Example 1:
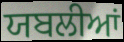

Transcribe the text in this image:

ਯਬਲੀਆਂ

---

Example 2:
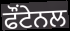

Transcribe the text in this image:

ਫੌਂਟੇਨਲ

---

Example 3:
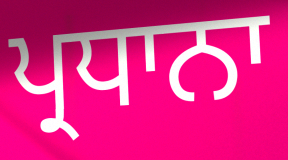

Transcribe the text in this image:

ਪ੍ਰਧਾਨਾ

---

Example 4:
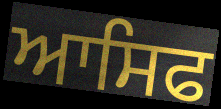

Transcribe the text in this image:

ਆਸਿਫ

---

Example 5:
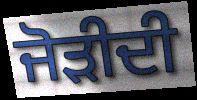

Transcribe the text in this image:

ਜੋੜੀਦੀ